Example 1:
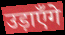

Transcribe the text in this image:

उड़ाएँगे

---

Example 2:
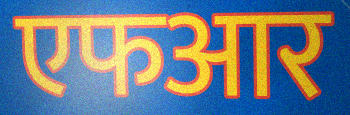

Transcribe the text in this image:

एफआर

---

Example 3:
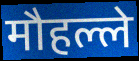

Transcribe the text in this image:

मौहल्ले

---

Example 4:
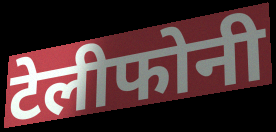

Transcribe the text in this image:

टेलीफोनी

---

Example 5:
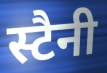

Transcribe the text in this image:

स्टैनी